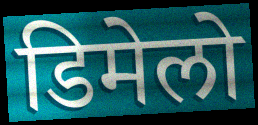
डिमेलो